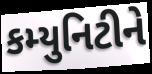
કમ્યુનિટીને